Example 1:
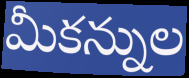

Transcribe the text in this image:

మీకన్నుల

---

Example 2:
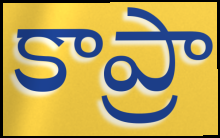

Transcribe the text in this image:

కాప్రా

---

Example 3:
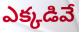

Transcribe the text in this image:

ఎక్కడివే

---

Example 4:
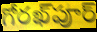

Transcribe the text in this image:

గోరఖ్‌పూర్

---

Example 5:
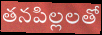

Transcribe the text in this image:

తనపిల్లలతో